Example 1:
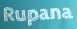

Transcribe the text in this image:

Rupana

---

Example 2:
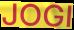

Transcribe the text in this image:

JOGI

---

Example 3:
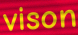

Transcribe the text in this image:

vison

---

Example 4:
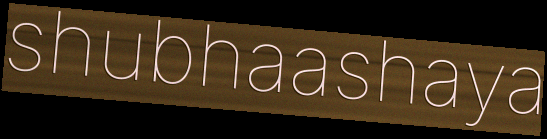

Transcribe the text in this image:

shubhaashaya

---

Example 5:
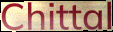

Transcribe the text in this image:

Chittal